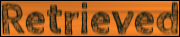
Retrieved